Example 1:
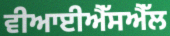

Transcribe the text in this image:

ਵੀਆਈਐੱਸਐੱਲ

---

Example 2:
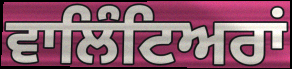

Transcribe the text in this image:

ਵਾਲਿੰਟਿਅਰਾਂ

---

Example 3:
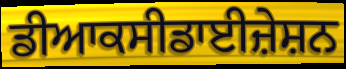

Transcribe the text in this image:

ਡੀਆਕਸੀਡਾਈਜ਼ੇਸ਼ਨ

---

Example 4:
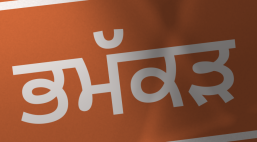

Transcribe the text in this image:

ਭਮੱਕੜ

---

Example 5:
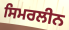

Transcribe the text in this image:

ਸਿਮਰਲੀਨ